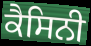
ਕੈਸਿਨੀ